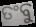
ତଂବୁ